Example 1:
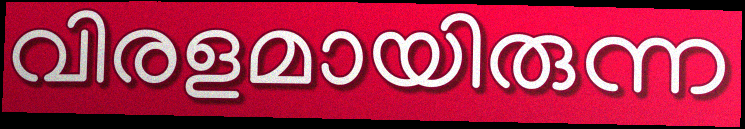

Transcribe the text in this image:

വിരളമായിരുന്ന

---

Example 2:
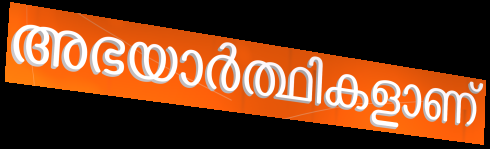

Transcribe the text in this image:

അഭയാർത്ഥികളാണ്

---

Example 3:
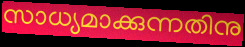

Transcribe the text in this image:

സാധ്യമാക്കുന്നതിനു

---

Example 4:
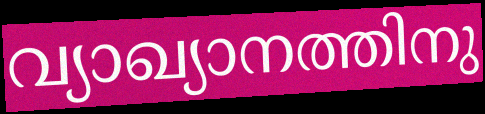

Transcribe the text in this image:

വ്യാഖ്യാനത്തിനു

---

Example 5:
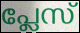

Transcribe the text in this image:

പ്ലേസ്